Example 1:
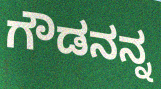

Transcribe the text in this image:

ಗೌಡನನ್ನ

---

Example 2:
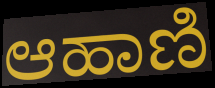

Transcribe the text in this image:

ಆಹಾಣಿ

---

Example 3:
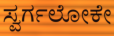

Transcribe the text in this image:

ಸ್ವರ್ಗಲೋಕೇ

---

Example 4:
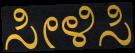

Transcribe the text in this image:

ಸೀಳಿಸಿ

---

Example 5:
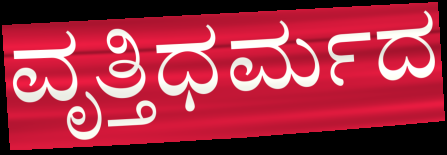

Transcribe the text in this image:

ವೃತ್ತಿಧರ್ಮದ